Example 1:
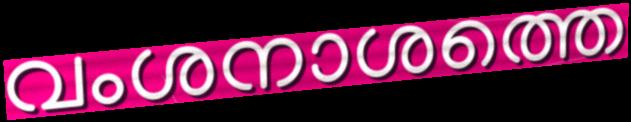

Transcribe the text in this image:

വംശനാശത്തെ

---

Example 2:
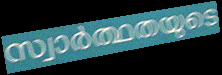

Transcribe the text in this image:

സ്വാർത്ഥതയുടെ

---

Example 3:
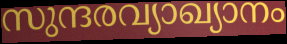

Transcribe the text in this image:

സുന്ദരവ്യാഖ്യാനം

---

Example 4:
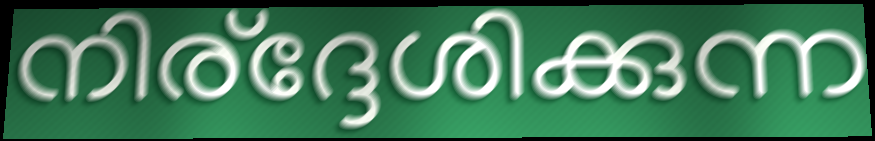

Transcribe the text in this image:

നിര്ദ്ദേശിക്കുന്ന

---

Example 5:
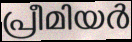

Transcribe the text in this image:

പ്രീമിയർ